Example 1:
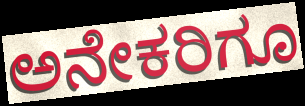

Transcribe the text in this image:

ಅನೇಕರಿಗೂ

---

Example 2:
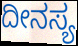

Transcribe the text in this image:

ದೀನಸ್ಯ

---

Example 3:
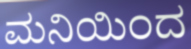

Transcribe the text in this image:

ಮನಿಯಿಂದ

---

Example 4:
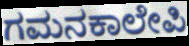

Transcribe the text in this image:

ಗಮನಕಾಲೇಪಿ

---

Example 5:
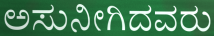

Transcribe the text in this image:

ಅಸುನೀಗಿದವರು